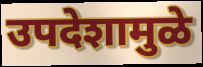
उपदेशामुळे